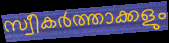
സ്വീകർത്താക്കളും